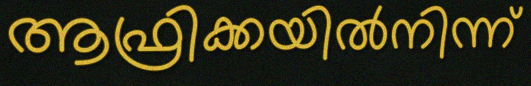
ആഫ്രിക്കയിൽനിന്ന്